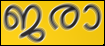
ജരാ